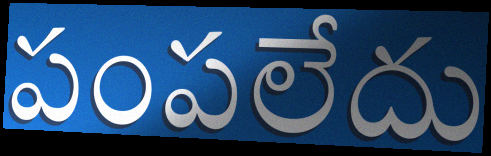
పంపలేదు